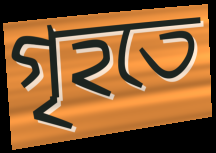
গৃহতে